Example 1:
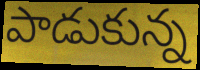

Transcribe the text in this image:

పాడుకున్న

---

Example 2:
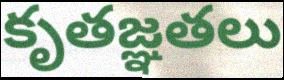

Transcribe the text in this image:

కృతజ్ఞతలు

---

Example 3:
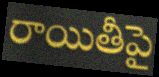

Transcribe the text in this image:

రాయితీపై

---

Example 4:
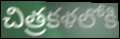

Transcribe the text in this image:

చిత్రకళలోకి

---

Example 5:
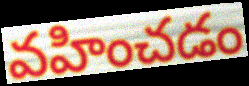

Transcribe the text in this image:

వహించడం